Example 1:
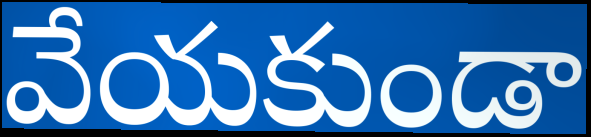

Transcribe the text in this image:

వేయకుండా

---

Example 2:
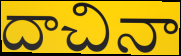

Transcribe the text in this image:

దాచినా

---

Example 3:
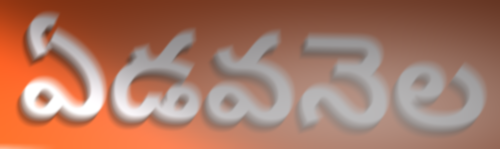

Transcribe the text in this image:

ఏడవనెల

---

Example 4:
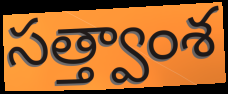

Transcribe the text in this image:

సత్త్వాంశ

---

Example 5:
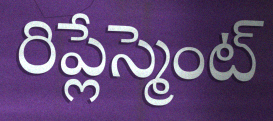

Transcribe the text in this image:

రిప్లేస్మెంట్